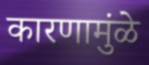
कारणामुंळे